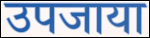
उपजाया